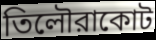
তিলৌরাকোট